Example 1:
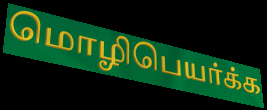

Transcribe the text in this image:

மொழிபெயர்க்க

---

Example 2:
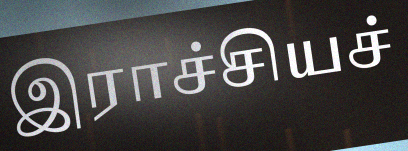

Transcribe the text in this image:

இராச்சியச்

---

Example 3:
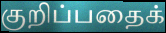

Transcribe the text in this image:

குறிப்பதைக்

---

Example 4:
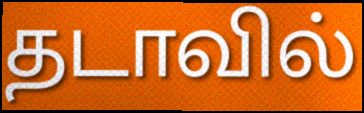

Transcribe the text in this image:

தடாவில்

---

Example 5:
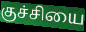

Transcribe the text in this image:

குச்சியை